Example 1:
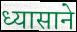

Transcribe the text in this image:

ध्यासाने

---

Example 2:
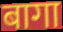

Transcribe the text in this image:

बागा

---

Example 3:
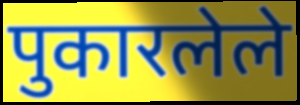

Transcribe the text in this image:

पुकारलेले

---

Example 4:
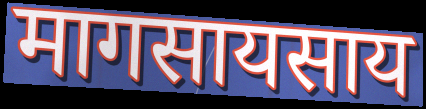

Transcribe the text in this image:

मागसायसाय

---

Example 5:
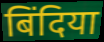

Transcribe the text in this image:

बिंदिया